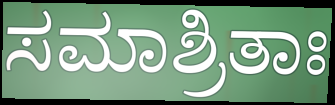
ಸಮಾಶ್ರಿತಾಃ